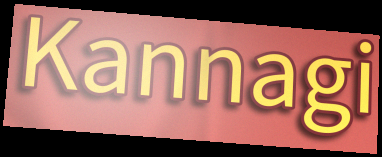
Kannagi